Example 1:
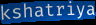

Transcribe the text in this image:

kshatriya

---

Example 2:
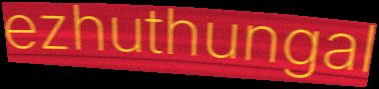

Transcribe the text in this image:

ezhuthungal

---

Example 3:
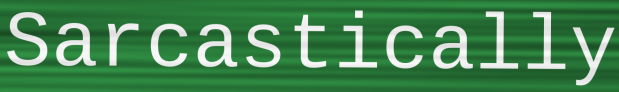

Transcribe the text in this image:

Sarcastically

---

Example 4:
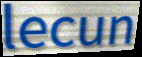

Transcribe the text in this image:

lecun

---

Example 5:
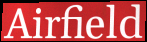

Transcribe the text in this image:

Airfield